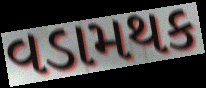
વડામથક